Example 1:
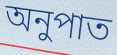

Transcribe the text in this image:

অনুপাত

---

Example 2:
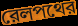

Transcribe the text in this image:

রেলপথের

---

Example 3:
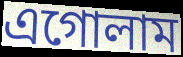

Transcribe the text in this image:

এগোলাম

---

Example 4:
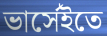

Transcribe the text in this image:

ভার্সেইতে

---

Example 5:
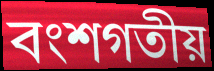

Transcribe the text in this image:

বংশগতীয়